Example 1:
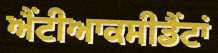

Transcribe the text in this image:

ਐਂਟੀਆਕਸੀਡੈਂਟਾਂ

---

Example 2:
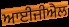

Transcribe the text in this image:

ਆਈਜੀਐਲ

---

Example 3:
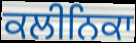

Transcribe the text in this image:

ਕਲੀਨਿਕਾ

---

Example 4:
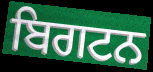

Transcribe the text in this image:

ਬਿਗਟਨ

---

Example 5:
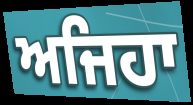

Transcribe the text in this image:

ਅਜਿਹਾ